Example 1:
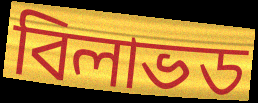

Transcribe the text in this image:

বিলাভড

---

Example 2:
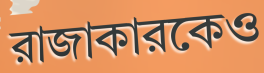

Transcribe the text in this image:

রাজাকারকেও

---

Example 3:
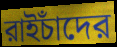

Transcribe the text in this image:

রাইচাঁদের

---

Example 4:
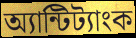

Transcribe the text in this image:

অ্যান্টিট্যাংক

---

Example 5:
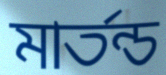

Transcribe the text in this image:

মার্তন্ড